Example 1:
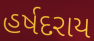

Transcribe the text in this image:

હર્ષદરાય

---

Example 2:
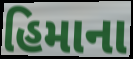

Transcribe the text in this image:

હિમાના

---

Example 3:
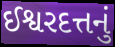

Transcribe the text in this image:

ઈશ્વરદત્તનું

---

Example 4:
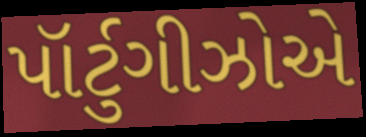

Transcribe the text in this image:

પૉર્ટુગીઝોએ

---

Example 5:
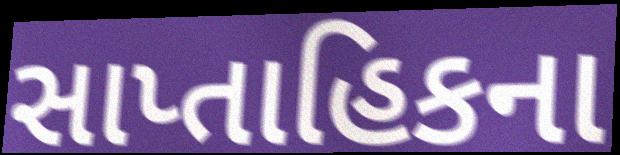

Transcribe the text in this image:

સાપ્તાહિકના